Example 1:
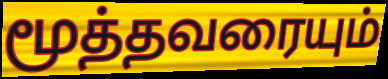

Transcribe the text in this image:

மூத்தவரையும்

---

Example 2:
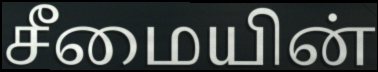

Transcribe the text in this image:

சீமையின்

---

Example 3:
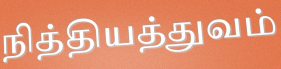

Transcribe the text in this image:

நித்தியத்துவம்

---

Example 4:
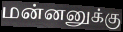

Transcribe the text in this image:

மன்னனுக்கு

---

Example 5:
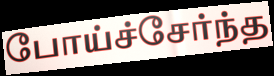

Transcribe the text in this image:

போய்ச்சேர்ந்த